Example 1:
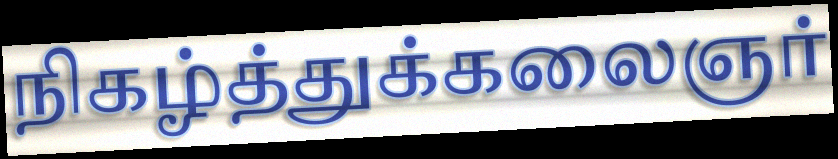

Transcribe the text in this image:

நிகழ்த்துக்கலைஞர்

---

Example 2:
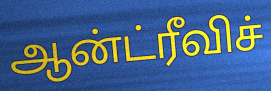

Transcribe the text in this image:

ஆன்ட்ரீவிச்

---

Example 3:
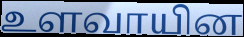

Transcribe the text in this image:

உளவாயின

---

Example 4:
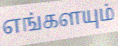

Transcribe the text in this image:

எங்களயும்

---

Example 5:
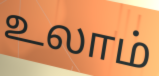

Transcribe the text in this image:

உலாம்